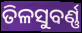
ତିଳସୁବର୍ଣ୍ଣ